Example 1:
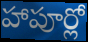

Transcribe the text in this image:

హాపూర్లో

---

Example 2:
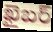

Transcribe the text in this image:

ఖైబర్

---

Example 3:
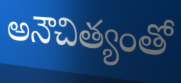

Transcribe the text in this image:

అనౌచిత్యంతో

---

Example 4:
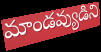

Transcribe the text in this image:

మాండవ్యుడిని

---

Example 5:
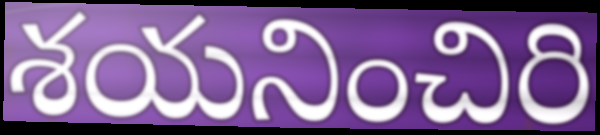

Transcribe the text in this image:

శయనించిరి